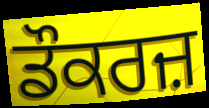
ਡੌਕਰਜ਼